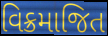
વિક્રમાજિત